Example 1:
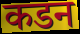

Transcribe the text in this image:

कडन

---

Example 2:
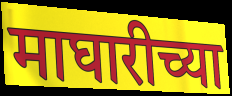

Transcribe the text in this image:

माघारीच्या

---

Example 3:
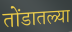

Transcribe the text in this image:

तोंडातल्या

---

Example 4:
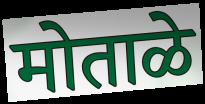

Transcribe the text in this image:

मोताळे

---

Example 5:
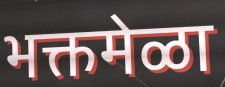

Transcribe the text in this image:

भक्तमेळा